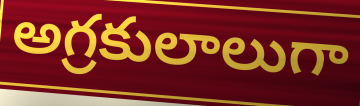
అగ్రకులాలుగా